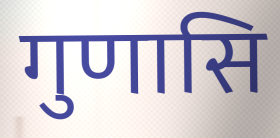
गुणासि